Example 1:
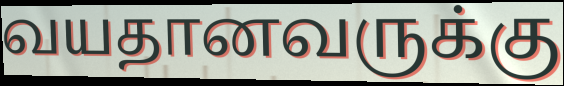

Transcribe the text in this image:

வயதானவருக்கு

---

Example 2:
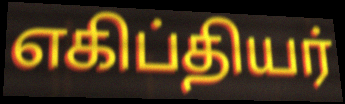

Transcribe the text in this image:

எகிப்தியர்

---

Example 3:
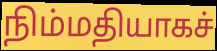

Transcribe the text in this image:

நிம்மதியாகச்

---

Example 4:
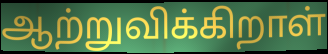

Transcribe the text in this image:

ஆற்றுவிக்கிறாள்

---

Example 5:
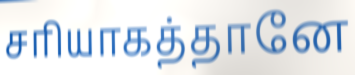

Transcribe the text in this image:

சரியாகத்தானே